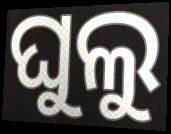
ଘୁଲୁ